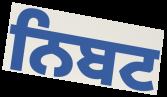
ਨਿਬਟ